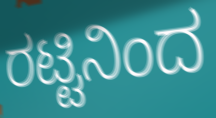
ರಟ್ಟಿನಿಂದ